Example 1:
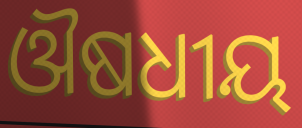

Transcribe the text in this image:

ଔଷଧୀୟ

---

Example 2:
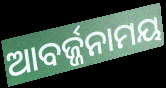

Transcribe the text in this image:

ଆବର୍ଜ୍ଜନାମୟ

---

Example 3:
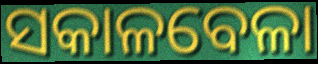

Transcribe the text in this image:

ସକାଳବେଳା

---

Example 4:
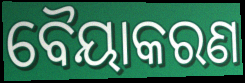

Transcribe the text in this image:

ବୈୟାକରଣ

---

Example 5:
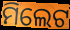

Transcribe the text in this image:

ମିଲେଟ